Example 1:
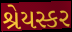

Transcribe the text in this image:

શ્રેયસ્કર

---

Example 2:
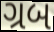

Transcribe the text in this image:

ગ્રબ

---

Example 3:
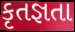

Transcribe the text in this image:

કૃતજ્ઞતા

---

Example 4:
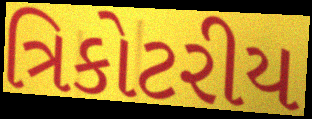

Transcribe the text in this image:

ત્રિકોટરીય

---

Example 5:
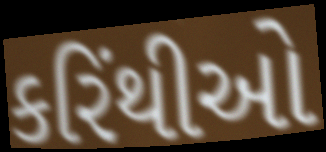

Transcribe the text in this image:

કરિંથીઓ